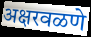
अक्षरवळणे